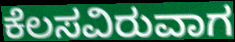
ಕೆಲಸವಿರುವಾಗ